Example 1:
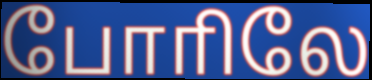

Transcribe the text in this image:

போரிலே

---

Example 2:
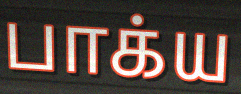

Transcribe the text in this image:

பாக்ய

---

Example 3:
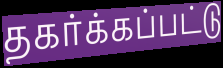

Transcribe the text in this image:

தகர்க்கப்பட்டு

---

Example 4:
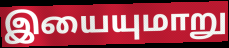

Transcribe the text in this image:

இயையுமாறு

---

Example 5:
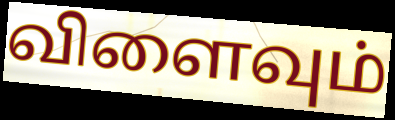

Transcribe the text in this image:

விளைவும்